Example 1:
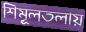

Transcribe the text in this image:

শিমূলতলায়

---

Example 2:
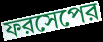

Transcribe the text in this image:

ফরসেপের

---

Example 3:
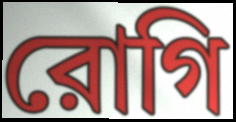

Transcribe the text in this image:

রোগি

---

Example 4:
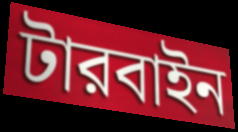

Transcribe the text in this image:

টারবাইন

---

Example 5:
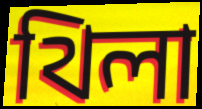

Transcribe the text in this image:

থিলা